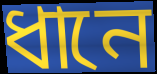
ধানে